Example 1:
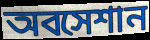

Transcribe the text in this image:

অবসেশান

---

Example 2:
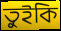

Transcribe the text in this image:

তুইকি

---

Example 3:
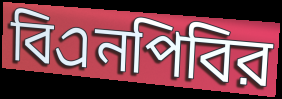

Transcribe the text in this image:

বিএনপিবির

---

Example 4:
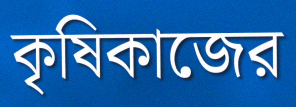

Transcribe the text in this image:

কৃষিকাজের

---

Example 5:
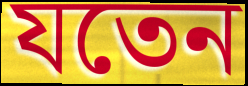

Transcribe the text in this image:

যতেন